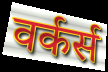
वर्कर्स